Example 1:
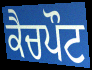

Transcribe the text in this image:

ਕੈਚਪੌਟ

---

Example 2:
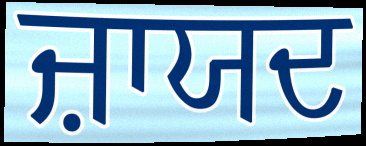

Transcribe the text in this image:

ਜ਼ਾਯਦ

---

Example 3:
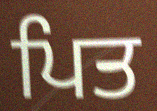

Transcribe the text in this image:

ਪਿਤ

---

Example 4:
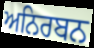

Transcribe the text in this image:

ਅਨਿਰਬਨ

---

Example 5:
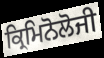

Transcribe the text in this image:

ਕ੍ਰਿਮਿਨੋਲੋਜੀ